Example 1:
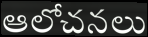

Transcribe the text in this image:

ఆలోచనలు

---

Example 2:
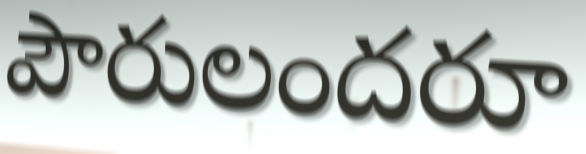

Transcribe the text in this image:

పౌరులందరూ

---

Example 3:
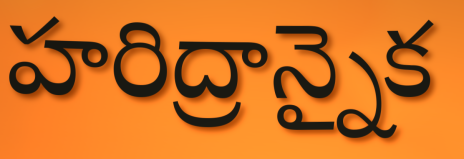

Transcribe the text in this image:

హరిద్రాన్నైక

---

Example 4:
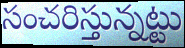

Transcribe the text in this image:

సంచరిస్తున్నట్టు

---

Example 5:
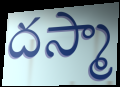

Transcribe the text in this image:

దస్మా